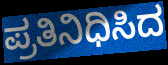
ಪ್ರತಿನಿಧಿಸಿದ